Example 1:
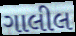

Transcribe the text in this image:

ગાલીલ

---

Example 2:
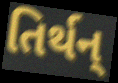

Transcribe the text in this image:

તિર્થન્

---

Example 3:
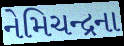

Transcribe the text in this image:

નેમિચન્દ્રના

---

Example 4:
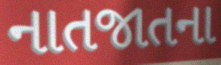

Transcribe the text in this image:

નાતજાતના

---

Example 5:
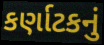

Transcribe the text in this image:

કર્ણાટકનું